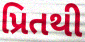
પ્રિતથી